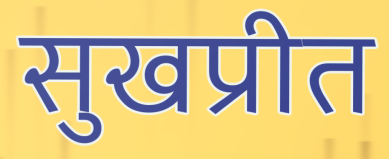
सुखप्रीत